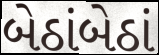
બેઠાંબેઠાં